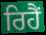
ਰਿਹੈਂ